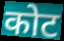
कोट